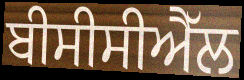
ਬੀਸੀਸੀਐੱਲ